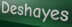
Deshayes